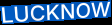
LUCKNOW